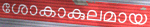
ശോകാകുലമായ